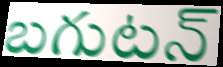
బగుటన్